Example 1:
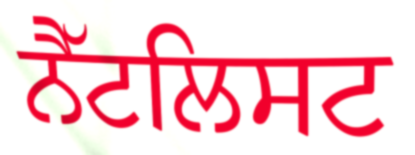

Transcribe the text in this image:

ਨੈੱਟਲਿਸਟ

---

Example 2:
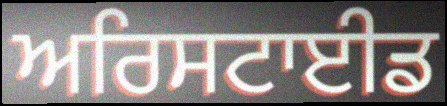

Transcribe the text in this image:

ਅਰਿਸਟਾਈਡ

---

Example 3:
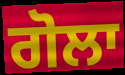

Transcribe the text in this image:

ਗੋਲਾ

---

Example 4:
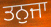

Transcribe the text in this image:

ਤਨੁਜਾ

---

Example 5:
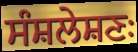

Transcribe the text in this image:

ਸੰਸ਼ਲੇਸ਼ਣਃ